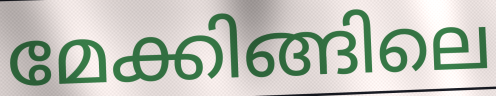
മേക്കിങ്ങിലെ